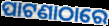
ପାଟଣାଠାରେ